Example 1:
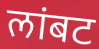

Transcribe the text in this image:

लांबट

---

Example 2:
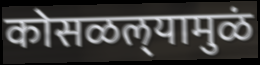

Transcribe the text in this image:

कोसळल्यामुळं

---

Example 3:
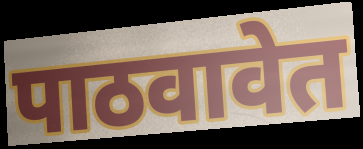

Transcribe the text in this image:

पाठवावेत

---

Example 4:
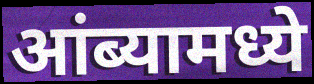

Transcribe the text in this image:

आंब्यामध्ये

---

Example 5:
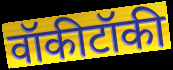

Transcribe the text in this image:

वॉकीटॉकी